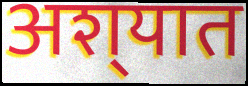
अश्यात